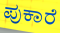
ಪುಕಾರೆ